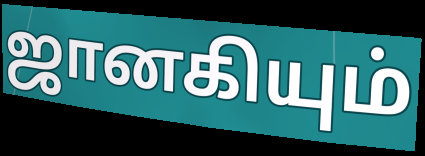
ஜானகியும்